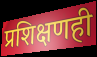
प्रशिक्षणही